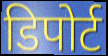
डिपोर्ट